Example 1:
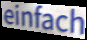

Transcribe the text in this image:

einfach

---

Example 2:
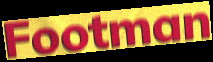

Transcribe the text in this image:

Footman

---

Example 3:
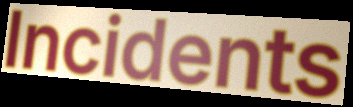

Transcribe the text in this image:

Incidents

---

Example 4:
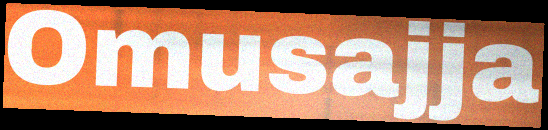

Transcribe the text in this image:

Omusajja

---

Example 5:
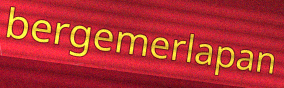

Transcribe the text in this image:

bergemerlapan